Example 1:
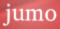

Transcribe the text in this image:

jumo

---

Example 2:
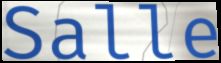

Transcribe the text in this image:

Salle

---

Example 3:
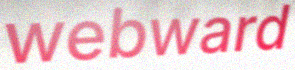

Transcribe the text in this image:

webward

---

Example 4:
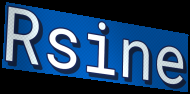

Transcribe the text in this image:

Rsine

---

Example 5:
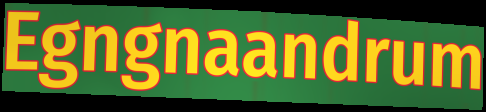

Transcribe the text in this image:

Egngnaandrum